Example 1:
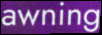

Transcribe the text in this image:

awning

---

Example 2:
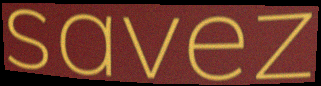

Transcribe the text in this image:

savez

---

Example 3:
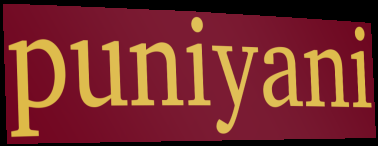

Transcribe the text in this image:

puniyani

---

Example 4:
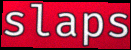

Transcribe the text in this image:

slaps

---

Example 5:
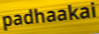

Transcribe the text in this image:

padhaakai